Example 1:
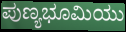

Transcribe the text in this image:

ಪುಣ್ಯಭೂಮಿಯು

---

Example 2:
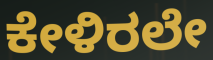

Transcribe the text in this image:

ಕೇಳಿರಲೇ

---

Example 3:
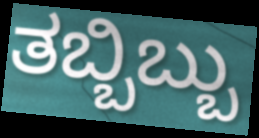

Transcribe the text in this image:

ತಬ್ಬಿಬ್ಬು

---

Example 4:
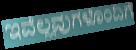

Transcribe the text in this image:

ಇವೆಲ್ಲವುಗಳೊಂದಿಗೆ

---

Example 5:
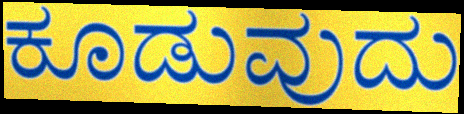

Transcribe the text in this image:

ಕೂಡುವುದು